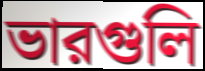
ভারগুলি